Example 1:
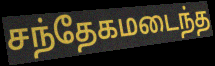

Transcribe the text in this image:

சந்தேகமடைந்த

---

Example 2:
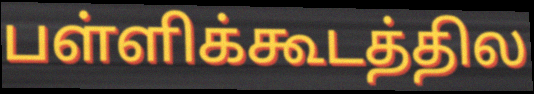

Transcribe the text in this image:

பள்ளிக்கூடத்தில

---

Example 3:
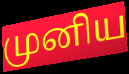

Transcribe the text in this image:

முனிய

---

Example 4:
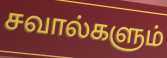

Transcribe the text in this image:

சவால்களும்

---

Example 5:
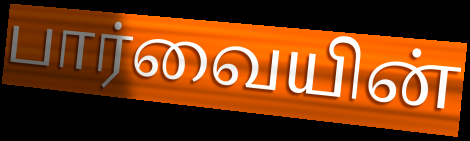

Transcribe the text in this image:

பார்வையின்